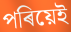
পৰিয়েই